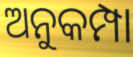
ଅନୁକମ୍ପା